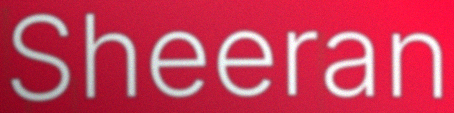
Sheeran